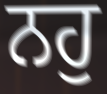
ਨਹੁ